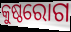
କୁଷ୍ଠରୋଗ